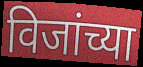
विजांच्या